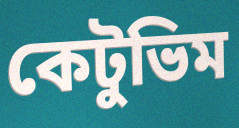
কেটুভিম